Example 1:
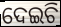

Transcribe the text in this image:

ଦେଇଚି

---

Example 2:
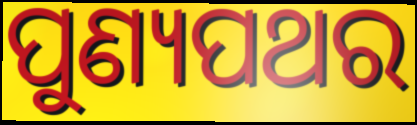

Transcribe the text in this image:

ପୁଣ୍ୟପଥର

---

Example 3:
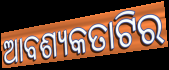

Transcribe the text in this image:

ଆବଶ୍ୟକତାଟିର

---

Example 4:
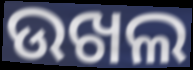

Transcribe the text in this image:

ଉଖଲ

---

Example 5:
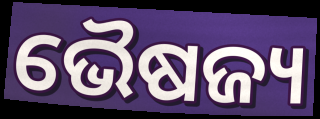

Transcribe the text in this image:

ଭୈଷଜ୍ୟ